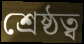
শ্ৰেষ্ঠত্ব